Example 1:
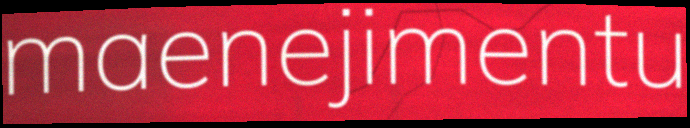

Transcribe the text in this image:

maenejimentu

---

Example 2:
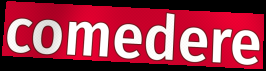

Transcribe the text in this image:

comedere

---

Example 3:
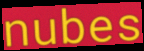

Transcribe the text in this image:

nubes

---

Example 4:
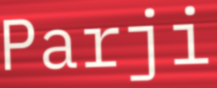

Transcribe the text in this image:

Parji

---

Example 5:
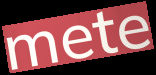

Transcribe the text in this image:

mete